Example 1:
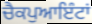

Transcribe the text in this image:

ਚੈਕਪੁਆਇੰਟਾਂ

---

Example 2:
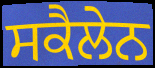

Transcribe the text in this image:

ਸਕੈਲੇਨ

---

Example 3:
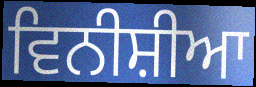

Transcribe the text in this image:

ਵਿਨੀਸ਼ੀਆ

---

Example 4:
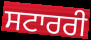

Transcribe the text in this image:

ਸਟਾਰਰੀ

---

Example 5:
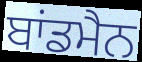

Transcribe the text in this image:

ਬਾਂਡਮੈਨ